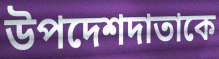
উপদেশদাতাকে